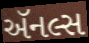
ઍનલ્સ